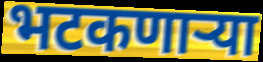
भटकणार्‍या